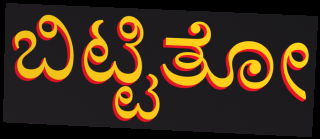
ಬಿಟ್ಟಿತೋ